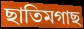
ছাতিমগাছ